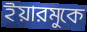
ইয়ারমুকে